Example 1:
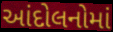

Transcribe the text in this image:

આંદોલનોમાં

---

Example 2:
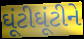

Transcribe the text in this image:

ઘૂંટીઘૂંટીને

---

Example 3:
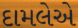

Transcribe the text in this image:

દામલેએ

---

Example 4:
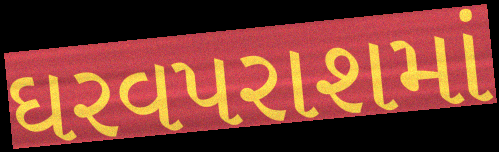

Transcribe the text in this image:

ઘરવપરાશમાં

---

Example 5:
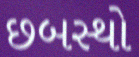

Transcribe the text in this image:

છબસ્થો